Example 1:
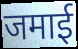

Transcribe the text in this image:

जमाई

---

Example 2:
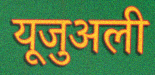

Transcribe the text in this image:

यूजुअली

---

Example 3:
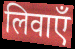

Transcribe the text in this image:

लिवाएँ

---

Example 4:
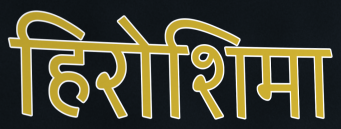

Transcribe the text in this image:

हिरोशिमा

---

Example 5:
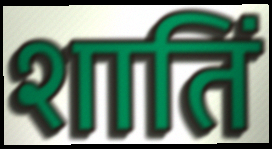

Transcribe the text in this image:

शातिं